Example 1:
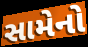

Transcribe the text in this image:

સામેનો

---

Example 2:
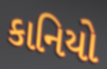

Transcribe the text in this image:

કાનિયો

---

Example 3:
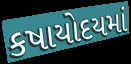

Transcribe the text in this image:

કષાયોદયમાં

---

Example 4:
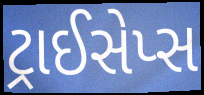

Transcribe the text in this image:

ટ્રાઈસેપ્સ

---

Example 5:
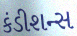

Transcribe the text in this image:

કંડીશન્સ